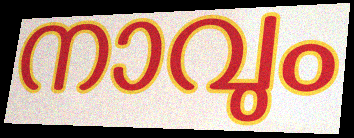
നാവും